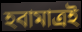
হবামাত্রই